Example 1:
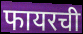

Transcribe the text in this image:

फायरची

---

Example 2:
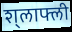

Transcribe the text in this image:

श्लाफ्ली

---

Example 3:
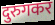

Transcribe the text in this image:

दुरुगकर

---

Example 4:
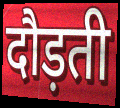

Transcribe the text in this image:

दौड़ती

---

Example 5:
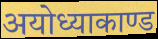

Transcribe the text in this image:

अयोध्याकाण्ड